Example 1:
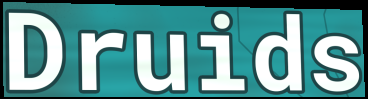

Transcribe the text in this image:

Druids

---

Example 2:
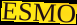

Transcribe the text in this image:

ESMO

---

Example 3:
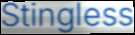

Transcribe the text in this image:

Stingless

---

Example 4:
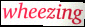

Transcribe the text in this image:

wheezing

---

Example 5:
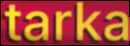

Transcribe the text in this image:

tarka